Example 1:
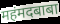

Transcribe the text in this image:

महंमदबाबा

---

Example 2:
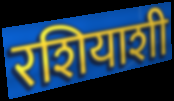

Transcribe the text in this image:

रशियाशी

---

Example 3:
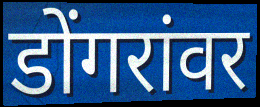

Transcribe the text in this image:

डोंगरांवर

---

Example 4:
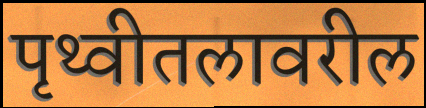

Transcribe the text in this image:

पृथ्वीतलावरील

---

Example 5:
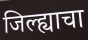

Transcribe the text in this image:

जिल्ह्याचा